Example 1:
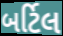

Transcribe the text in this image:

બર્ટિલ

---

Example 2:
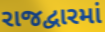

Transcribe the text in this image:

રાજદ્વારમાં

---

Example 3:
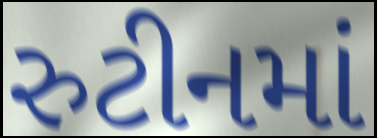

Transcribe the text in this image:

રુટીનમાં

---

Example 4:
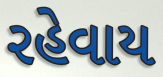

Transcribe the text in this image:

રહેવાય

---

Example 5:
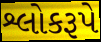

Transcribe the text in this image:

શ્લોકરૂપે